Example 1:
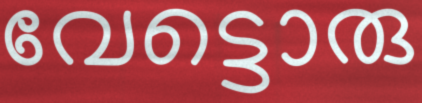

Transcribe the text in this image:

വേട്ടൊരു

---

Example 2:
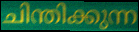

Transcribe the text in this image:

ചിന്തിക്കുന്ന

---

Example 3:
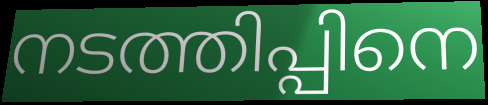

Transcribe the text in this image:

നടത്തിപ്പിനെ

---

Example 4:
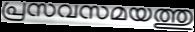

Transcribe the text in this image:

പ്രസവസമയത്തു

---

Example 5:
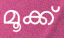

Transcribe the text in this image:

മൂക്ക്